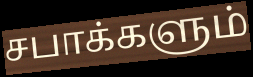
சபாக்களும்